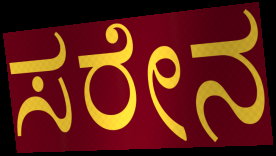
ಸರೇನ